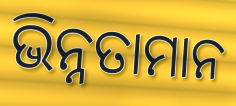
ଭିନ୍ନତାମାନ